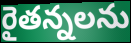
రైతన్నలను